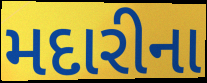
મદારીના